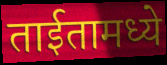
ताईतामध्ये